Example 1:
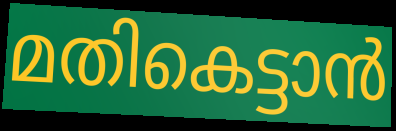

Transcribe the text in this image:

മതികെട്ടാൻ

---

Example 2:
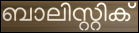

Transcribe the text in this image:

ബാലിസ്റ്റിക്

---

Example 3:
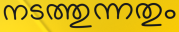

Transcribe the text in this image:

നടത്തുന്നതും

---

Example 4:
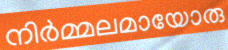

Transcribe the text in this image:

നിർമ്മലമായോരു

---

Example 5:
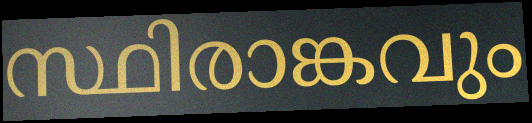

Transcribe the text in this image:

സ്ഥിരാങ്കവും